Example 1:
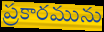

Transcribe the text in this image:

ప్రకారమును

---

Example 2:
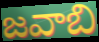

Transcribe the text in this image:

జవాబి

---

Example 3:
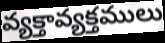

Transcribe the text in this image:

వ్యక్తావ్యక్తములు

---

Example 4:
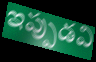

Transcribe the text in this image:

ఇప్పుడవి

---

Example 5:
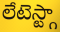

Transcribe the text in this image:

లేటెస్ట్గా